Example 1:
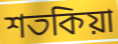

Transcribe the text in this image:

শতকিয়া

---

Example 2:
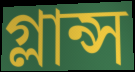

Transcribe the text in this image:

গ্লান্স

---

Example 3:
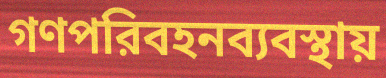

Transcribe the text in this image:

গণপরিবহনব্যবস্থায়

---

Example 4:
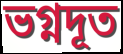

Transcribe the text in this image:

ভগ্নদূত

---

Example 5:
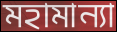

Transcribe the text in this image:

মহামান্যা